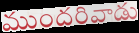
ముందరివాడు